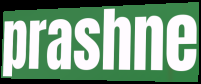
prashne